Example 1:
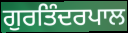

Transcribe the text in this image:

ਗੁਰਤਿੰਦਰਪਾਲ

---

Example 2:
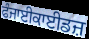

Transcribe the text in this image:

ਫੰਜਾਈਕਾਈਡਜ਼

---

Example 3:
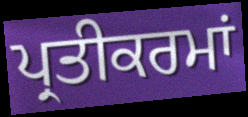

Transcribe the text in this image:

ਪ੍ਰਤੀਕਰਮਾਂ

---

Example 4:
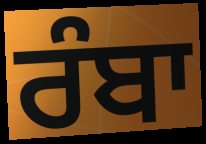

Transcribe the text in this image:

ਰੰਬਾ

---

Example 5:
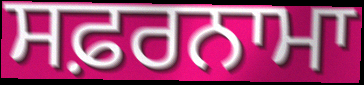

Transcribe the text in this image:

ਸਫ਼ਰਨਾਮਾ